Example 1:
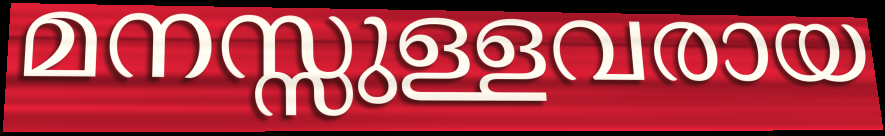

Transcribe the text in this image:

മനസ്സുള്ളവരായ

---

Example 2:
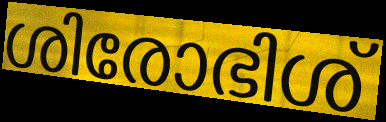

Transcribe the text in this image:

ശിരോഭിശ്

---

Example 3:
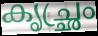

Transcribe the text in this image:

കൃച്ഛ്രം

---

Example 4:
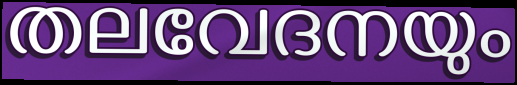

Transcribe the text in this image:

തലവേദനയും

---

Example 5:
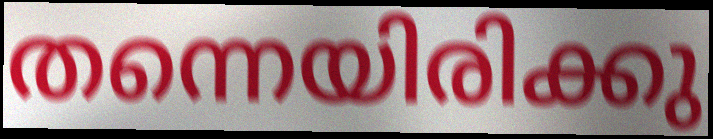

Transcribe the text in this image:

തന്നെയിരിക്കു